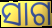
ସାଗ